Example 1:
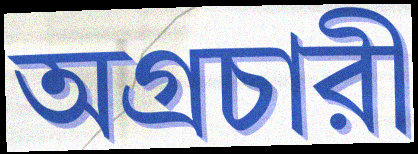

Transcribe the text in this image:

অগ্রচারী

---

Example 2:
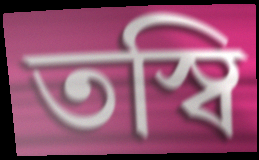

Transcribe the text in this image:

তস্বি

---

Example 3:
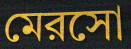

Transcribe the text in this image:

মেরসো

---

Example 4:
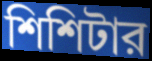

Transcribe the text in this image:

শিশিটার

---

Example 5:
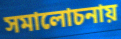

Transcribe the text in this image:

সমালোচনায়